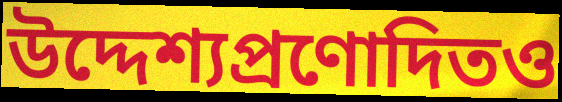
উদ্দেশ্যপ্রণোদিতও